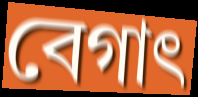
বেগাৎ